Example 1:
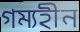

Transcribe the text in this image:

গম্যহীন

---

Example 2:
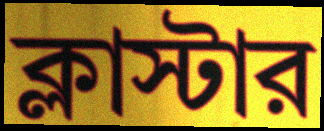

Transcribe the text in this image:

ক্লাস্টার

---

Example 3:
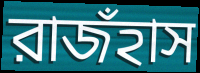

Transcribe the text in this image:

রাজঁহাস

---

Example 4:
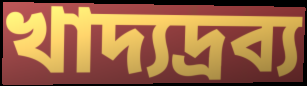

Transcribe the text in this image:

খাদ্যদ্রব্য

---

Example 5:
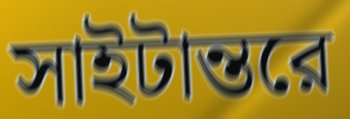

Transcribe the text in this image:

সাইটান্তরে